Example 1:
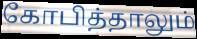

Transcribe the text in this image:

கோபித்தாலும்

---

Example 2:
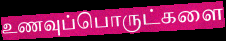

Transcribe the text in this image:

உணவுப்பொருட்களை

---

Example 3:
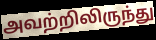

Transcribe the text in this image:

அவற்றிலிருந்து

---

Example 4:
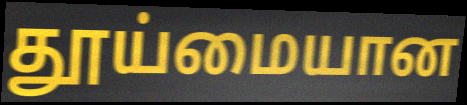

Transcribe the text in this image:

தூய்மையான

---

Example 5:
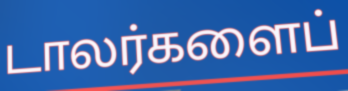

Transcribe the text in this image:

டாலர்களைப்